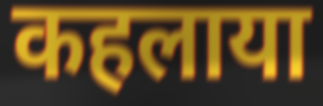
कहलाया